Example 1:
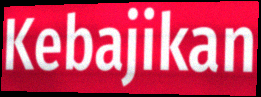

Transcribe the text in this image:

Kebajikan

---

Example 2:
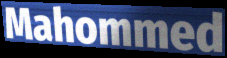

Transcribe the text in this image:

Mahommed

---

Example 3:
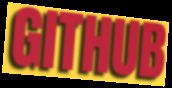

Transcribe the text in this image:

GITHUB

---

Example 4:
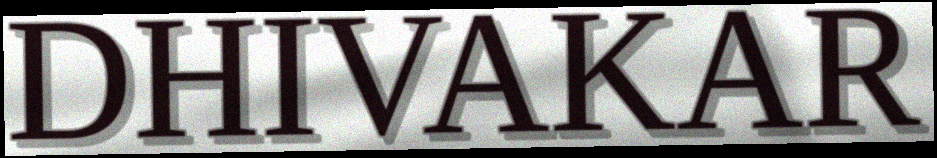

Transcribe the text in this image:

DHIVAKAR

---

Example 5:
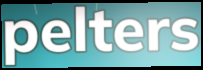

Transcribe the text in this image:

pelters